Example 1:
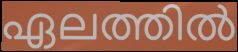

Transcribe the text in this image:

ഏലത്തിൽ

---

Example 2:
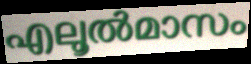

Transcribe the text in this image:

എലൂൽമാസം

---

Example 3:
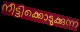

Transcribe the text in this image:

നീട്ടിക്കൊടുക്കുന്ന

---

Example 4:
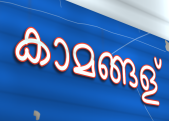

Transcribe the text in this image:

കാമങ്ങള്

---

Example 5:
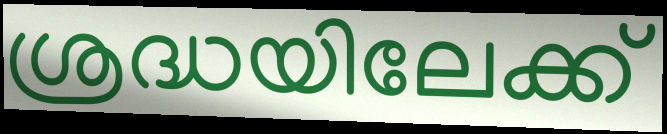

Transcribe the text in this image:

ശ്രദ്ധയിലേക്ക്